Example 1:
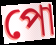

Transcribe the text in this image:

পো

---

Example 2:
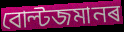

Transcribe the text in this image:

বোল্টজমানৰ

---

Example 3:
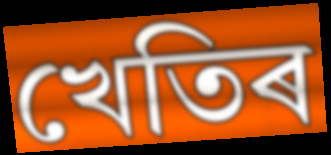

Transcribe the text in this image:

খেতিৰ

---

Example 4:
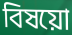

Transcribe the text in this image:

বিষয়ো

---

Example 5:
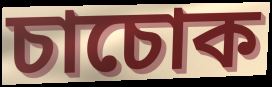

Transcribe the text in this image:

চাচোক